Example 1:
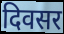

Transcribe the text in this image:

दिवसर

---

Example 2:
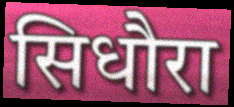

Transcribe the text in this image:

सिधौरा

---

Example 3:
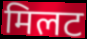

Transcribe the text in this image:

मिलट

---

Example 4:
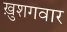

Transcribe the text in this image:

ख़ुशगवार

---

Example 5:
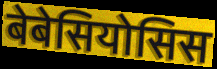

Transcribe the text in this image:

बेबेसियोसिस